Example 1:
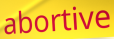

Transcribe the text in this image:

abortive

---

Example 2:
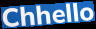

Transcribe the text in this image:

Chhello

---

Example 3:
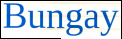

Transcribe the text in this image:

Bungay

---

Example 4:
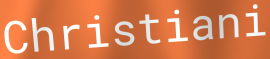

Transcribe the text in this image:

Christiani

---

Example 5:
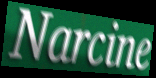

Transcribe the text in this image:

Narcine